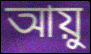
আয়ু